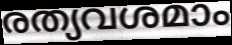
രത്യവശമാം